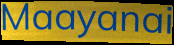
Maayanai